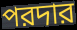
পরদার